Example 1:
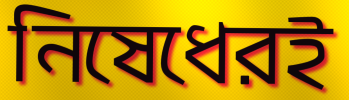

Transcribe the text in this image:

নিষেধেরই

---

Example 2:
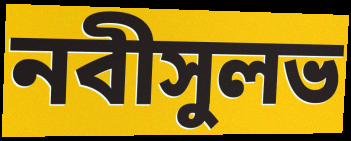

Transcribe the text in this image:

নবীসুলভ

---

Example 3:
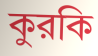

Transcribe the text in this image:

কুরকি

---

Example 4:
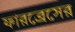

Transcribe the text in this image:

ফারব্রেসের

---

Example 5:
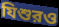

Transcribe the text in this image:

যিশুরও